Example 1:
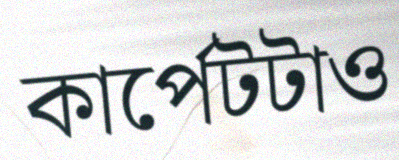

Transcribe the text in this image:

কার্পেটটাও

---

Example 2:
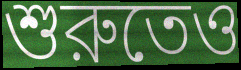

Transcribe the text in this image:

শুরুতেও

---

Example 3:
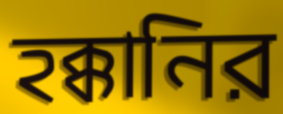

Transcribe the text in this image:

হক্কানির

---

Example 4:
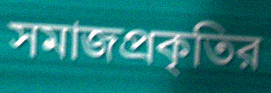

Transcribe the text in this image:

সমাজপ্রকৃতির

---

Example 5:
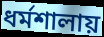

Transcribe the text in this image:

ধর্মশালায়